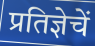
प्रतिज्ञेचें